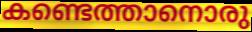
കണ്ടെത്താനൊരു